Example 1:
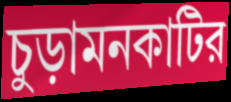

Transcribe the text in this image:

চুড়ামনকাটির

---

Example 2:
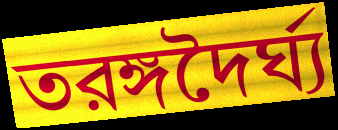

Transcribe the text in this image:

তরঙ্গদৈর্ঘ্য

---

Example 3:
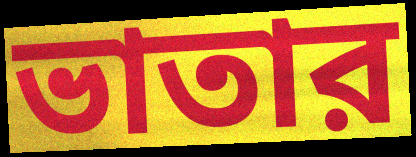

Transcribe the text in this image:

ভাতার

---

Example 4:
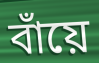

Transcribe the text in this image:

বাঁয়ে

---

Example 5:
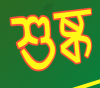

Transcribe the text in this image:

শুষ্ক